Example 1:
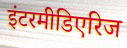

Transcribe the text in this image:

इंटरमीडिएरिज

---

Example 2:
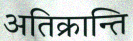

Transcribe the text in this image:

अतिक्रान्ति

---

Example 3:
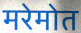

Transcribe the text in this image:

मरेमोत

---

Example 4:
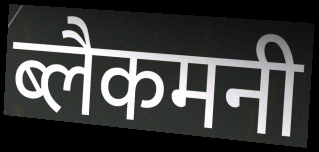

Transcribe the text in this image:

ब्‍लैकमनी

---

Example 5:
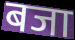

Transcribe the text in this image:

बजा